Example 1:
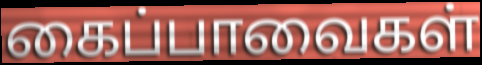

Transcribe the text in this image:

கைப்பாவைகள்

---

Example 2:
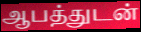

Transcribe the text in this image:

ஆபத்துடன்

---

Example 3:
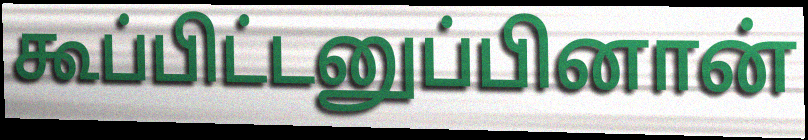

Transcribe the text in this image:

கூப்பிட்டனுப்பினான்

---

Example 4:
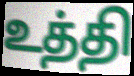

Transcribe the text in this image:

உத்தி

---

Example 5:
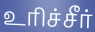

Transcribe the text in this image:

உரிச்சீர்